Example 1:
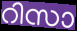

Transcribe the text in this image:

റിസാ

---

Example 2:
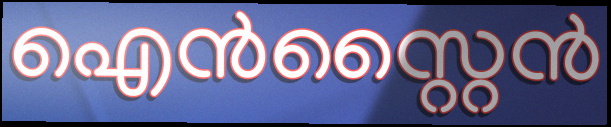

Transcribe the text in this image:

ഐൻസ്റ്റൈൻ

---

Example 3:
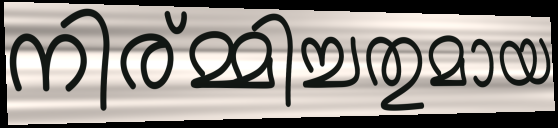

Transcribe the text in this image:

നിര്മ്മിച്ചതുമായ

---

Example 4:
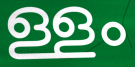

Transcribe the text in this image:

ള്ളം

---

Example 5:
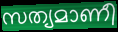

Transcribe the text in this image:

സത്യമാണീ